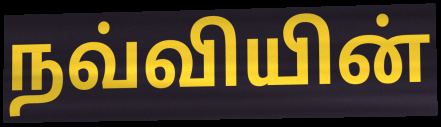
நவ்வியின்